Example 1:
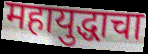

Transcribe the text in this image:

महायुद्धाचा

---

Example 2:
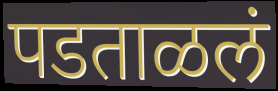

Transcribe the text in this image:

पडताळलं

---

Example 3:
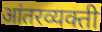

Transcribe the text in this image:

आंतरव्यक्ती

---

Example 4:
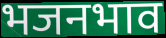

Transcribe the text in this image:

भजनभाव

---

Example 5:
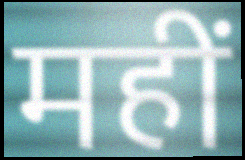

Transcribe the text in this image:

महीं